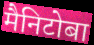
मैनिटोबा